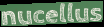
nucellus